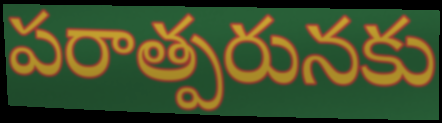
పరాత్పరునకు